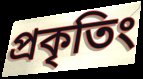
প্রকৃতিং